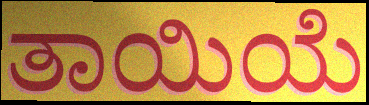
ತಾಯಿಯೆ